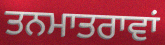
ਤਨਮਾਤਰਾਵਾਂ